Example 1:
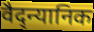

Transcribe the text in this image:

वैद्न्यानिक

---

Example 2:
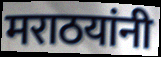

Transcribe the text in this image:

मराठयांनी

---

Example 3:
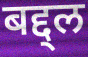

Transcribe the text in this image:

बद्द्ल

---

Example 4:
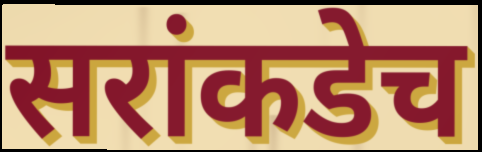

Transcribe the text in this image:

सरांकडेच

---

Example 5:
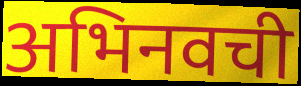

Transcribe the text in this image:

अभिनवची